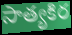
సాత్యకిర